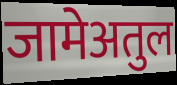
जामेअतुल